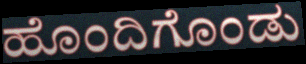
ಹೊಂದಿಗೊಂಡು